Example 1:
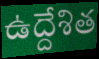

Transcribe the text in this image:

ఉద్దేశిత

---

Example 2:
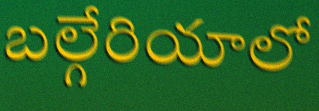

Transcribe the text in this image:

బల్గేరియాలో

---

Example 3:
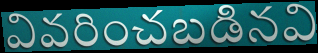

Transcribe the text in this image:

వివరించబడినవి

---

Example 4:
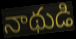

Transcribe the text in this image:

నాథుడి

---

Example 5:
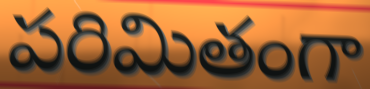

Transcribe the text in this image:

పరిమితంగా